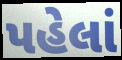
પહેલાં